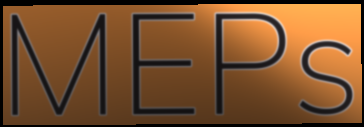
MEPs